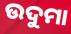
ଉଦୁମା